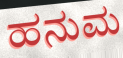
ಹನುಮ